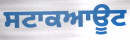
ਸਟਾਕਆਊਟ